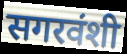
सगरवंशी